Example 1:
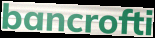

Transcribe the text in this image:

bancrofti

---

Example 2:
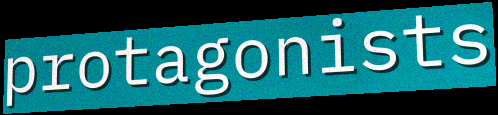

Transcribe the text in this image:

protagonists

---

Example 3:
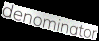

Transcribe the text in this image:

denominator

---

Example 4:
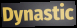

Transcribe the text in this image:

Dynastic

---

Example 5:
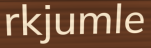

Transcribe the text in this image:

rkjumle